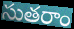
సుతరాం